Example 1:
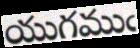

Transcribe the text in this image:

యుగముఁ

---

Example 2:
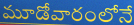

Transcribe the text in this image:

మూడోవారంలోనే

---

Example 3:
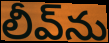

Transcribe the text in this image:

లీవ్‌ను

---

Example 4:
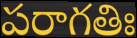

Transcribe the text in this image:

పరాగతిః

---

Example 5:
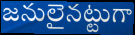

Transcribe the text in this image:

జనులైనట్టుగా